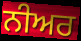
ਨੀਅਰ